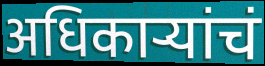
अधिकाऱ्यांचं